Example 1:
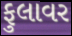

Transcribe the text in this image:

ફુલાવર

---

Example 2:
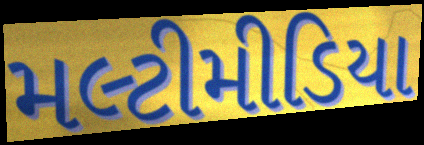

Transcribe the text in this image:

મલ્ટીમીડિયા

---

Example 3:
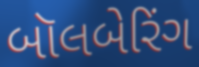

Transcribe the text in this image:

બૉલબેરિંગ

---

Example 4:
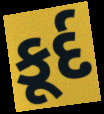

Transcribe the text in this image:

કૂર્દ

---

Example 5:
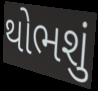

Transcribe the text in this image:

થોભશું